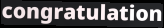
congratulation